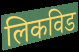
लिकविड